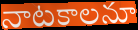
నాటకాలనూ